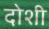
दोशी